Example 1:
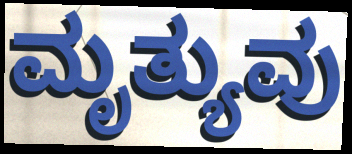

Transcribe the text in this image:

ಮೃತ್ಯುವು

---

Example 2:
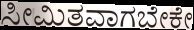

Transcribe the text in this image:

ಸೀಮಿತವಾಗಬೇಕೇ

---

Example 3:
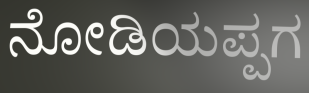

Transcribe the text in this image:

ನೋಡಿಯಪ್ಪಗ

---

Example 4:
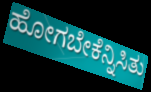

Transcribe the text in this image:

ಹೋಗಬೇಕೆನ್ನಿಸಿತು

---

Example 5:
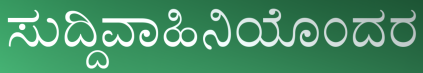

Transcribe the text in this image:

ಸುದ್ದಿವಾಹಿನಿಯೊಂದರ